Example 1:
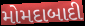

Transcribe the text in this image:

મોમદાબાદી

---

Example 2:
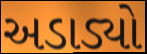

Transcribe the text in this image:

અડાડ્યો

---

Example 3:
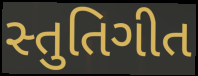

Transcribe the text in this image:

સ્તુતિગીત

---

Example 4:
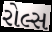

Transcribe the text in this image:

રોલ્સ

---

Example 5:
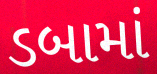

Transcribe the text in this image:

ડબામાં